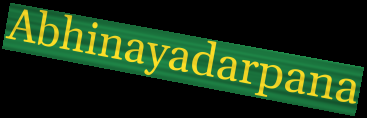
Abhinayadarpana